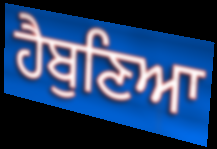
ਹੈਬੁਣਿਆ